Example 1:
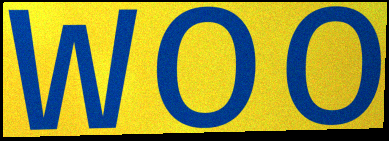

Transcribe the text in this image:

woo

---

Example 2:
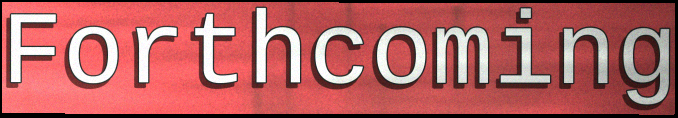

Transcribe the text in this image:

Forthcoming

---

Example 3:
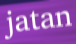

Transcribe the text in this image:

jatan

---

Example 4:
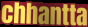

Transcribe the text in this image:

chhantta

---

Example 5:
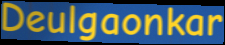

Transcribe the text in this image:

Deulgaonkar